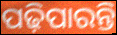
ପଢ଼ିପାରନ୍ତି